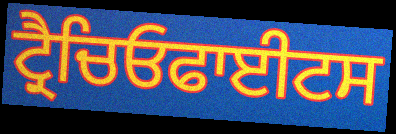
ਟ੍ਰੈਚਿਓਫਾਈਟਸ